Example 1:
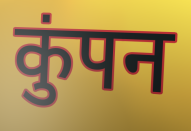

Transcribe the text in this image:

कुंपन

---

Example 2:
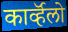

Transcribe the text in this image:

कार्व्हॅलो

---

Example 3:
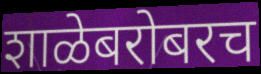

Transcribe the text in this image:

शाळेबरोबरच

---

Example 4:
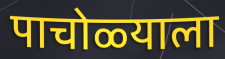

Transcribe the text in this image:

पाचोळ्याला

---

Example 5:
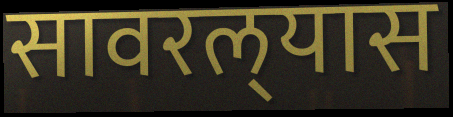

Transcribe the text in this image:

सावरल्यास